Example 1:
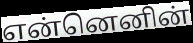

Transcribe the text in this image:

என்னெனின்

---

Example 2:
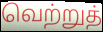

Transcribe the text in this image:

வெற்றுத்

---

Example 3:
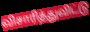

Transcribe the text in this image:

விசாரித்துவிட்டு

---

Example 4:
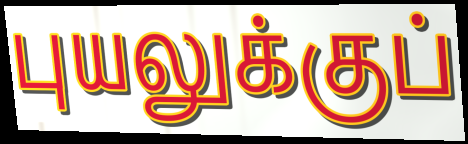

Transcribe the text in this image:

புயலுக்குப்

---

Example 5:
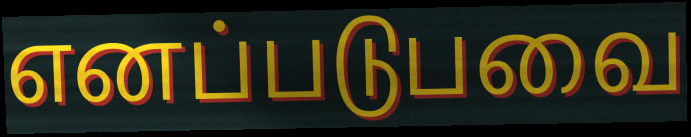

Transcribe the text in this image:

எனப்படுபவை